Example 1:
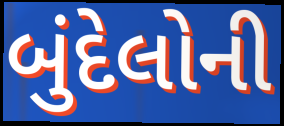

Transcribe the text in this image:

બુંદેલોની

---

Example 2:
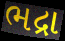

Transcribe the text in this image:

ભદ્રા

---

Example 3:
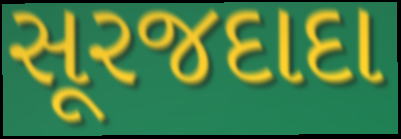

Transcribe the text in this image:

સૂરજદાદા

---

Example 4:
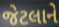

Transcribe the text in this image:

જેટલાને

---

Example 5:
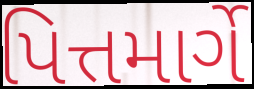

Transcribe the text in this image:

પિત્તમાર્ગે